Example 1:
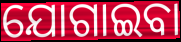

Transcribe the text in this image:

ଯୋଗାଇବା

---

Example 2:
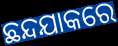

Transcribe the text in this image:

ଛନ୍ଦଯାକରେ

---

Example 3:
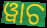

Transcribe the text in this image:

ୱାଚ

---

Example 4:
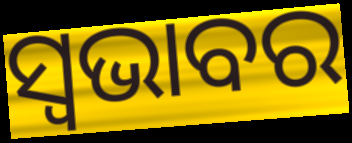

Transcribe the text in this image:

ସ୍ଵଭାବର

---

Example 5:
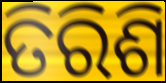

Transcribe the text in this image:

ତିରିଶି